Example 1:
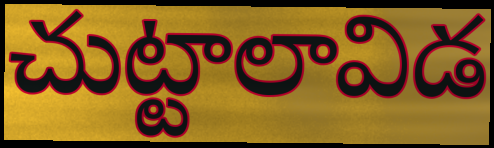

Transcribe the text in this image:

చుట్టాలావిడ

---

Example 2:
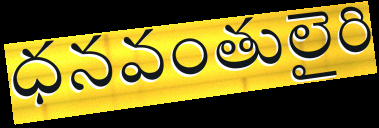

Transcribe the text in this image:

ధనవంతులైరి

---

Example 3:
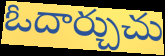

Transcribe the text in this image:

ఓదార్చుచు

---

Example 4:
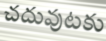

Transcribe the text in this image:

చదువుటకు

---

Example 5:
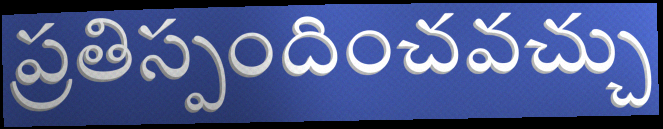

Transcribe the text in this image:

ప్రతిస్పందించవచ్చు